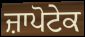
ਜ਼ਾਪੋਟੇਕ